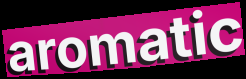
aromatic